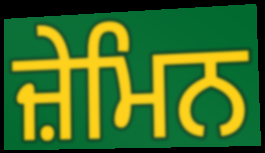
ਜ਼ੇਮਿਨ